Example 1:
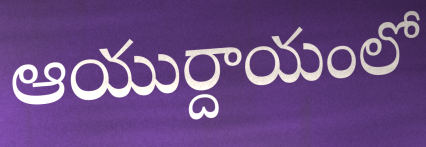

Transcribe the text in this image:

ఆయుర్దాయంలో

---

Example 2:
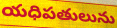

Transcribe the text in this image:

యధిపతులును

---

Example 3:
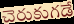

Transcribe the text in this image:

చెరుకుగడే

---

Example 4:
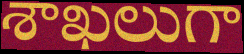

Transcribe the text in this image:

శాఖలుగా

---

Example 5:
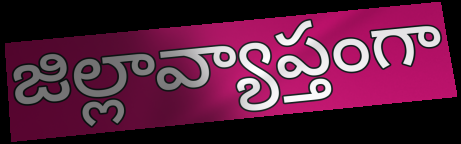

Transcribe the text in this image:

జిల్లావ్యాప్తంగా